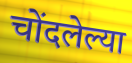
चोंदलेल्या